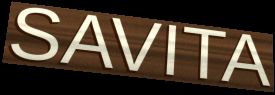
SAVITA